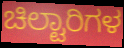
ಚಿಲ್ಟಾರಿಗಳ